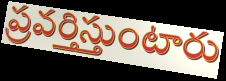
ప్రవర్తిస్తుంటారు